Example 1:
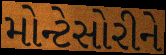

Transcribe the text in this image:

મોન્ટેસોરીને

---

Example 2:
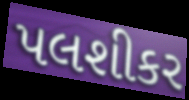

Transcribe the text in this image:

પલશીકર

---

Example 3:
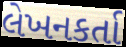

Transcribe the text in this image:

લેખનકર્તા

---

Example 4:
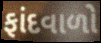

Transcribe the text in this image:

ફાંદવાળો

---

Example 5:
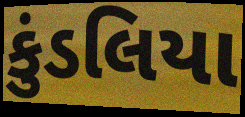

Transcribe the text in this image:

કુંડલિયા